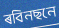
ৰবিনছনে